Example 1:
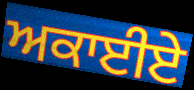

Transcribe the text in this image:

ਅਕਾਈਏ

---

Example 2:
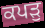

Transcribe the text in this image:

ਕਪੜੁ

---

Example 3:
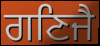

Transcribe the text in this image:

ਗਣਿਜੈ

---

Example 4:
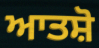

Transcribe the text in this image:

ਆਤਸ਼ੋ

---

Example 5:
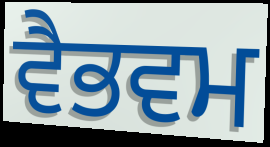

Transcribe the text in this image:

ਵੈਭਵਮ